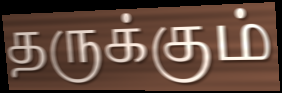
தருக்கும்